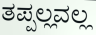
ತಪ್ಪಲ್ಲವಲ್ಲ